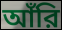
আঁরি